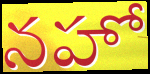
నహో